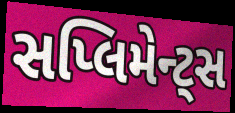
સપ્લિમેન્ટ્સ